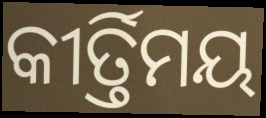
କୀର୍ତ୍ତିମୟ